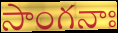
సాంగనాః